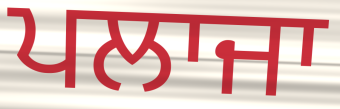
ਪਲਾਜਾ